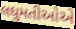
લઘુમતીઓએ